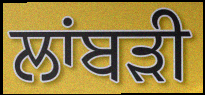
ਲਾਂਬੜੀ